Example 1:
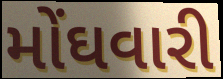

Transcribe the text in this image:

મોંઘવારી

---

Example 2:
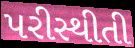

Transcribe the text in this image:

પરીસ્થીતી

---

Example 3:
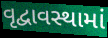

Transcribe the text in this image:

વૃદ્વાવસ્થામાં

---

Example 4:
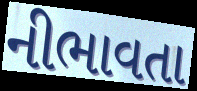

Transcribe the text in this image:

નીભાવતા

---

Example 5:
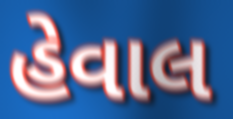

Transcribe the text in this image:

હેવાલ